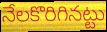
నేలకొరిగినట్టు